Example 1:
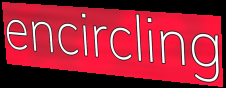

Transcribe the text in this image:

encircling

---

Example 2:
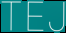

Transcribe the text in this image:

TEJ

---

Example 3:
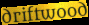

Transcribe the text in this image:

driftwood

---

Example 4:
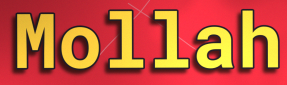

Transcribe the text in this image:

Mollah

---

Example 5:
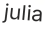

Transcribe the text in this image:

julia